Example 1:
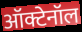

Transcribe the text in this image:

ऑक्टेनॉल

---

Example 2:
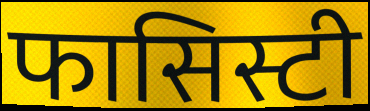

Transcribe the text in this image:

फासिस्टी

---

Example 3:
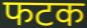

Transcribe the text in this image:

फटक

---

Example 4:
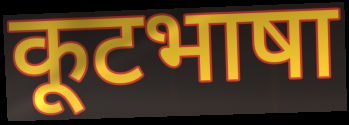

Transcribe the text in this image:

कूटभाषा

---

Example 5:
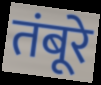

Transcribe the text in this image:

तंबूरे